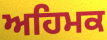
ਅਹਿਮਕ